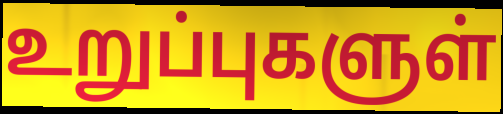
உறுப்புகளுள்